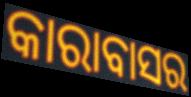
କାରାବାସର